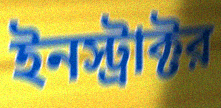
ইনস্ট্রাক্টর